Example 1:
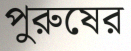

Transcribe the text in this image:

পুরুষের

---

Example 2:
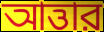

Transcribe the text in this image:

আত্তার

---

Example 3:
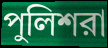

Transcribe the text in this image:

পুলিশরা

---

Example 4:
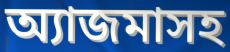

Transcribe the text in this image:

অ্যাজমাসহ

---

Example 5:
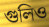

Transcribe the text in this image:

গুলিও